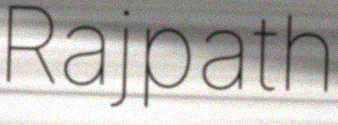
Rajpath